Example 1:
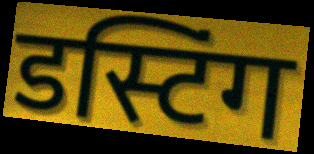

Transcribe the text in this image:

डस्टिंग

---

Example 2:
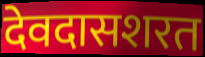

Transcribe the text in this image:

देवदासशरत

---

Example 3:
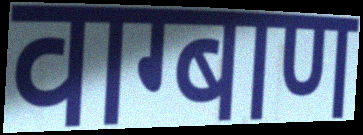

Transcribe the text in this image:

वाग्बाण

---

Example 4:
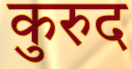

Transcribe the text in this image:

कुरुद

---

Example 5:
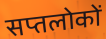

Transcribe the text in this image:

सप्तलोकों